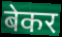
बेकर